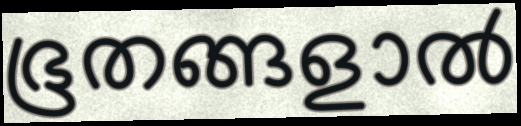
ഭൂതങ്ങളാൽ